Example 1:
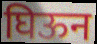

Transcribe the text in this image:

घिऊन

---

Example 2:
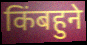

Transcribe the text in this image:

किंबहुने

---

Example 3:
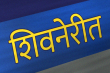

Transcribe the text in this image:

शिवनेरीत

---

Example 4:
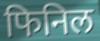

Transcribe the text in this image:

फिनिल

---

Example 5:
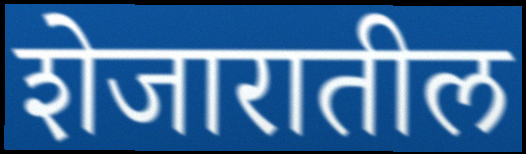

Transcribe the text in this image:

शेजारातील